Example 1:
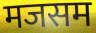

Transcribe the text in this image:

मजसम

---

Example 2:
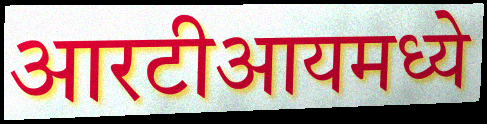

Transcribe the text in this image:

आरटीआयमध्ये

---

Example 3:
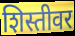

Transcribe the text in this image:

शिस्तीवर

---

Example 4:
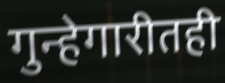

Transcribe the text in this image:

गुन्हेगारीतही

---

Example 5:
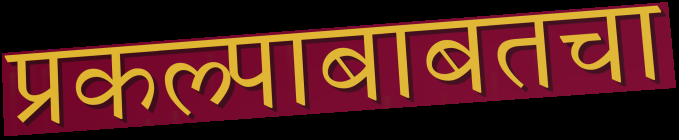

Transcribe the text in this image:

प्रकल्पाबाबतचा